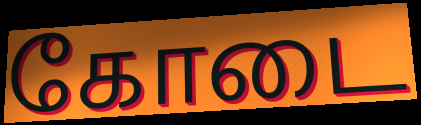
கோடை